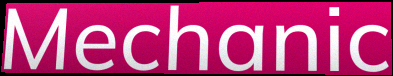
Mechanic